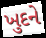
ખુદને